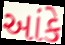
આંકે